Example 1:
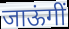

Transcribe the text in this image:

जाऊंगीं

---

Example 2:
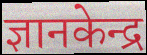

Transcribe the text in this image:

ज्ञानकेन्द्र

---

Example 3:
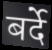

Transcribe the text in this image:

बर्दे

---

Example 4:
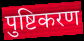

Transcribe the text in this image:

पुष्टिकरण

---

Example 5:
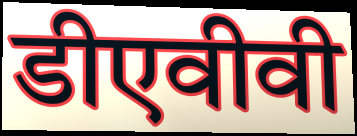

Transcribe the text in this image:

डीएवीवी